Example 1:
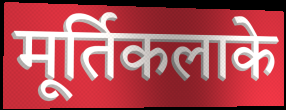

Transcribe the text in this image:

मूर्तिकलाके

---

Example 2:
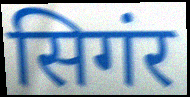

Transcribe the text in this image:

सिगंर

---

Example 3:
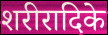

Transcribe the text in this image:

शरीरादिके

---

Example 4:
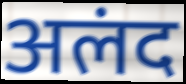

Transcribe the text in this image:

अलंद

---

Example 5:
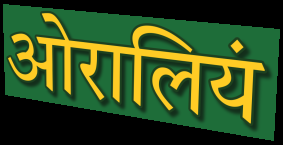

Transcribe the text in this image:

ओरालियं